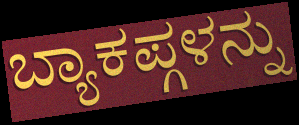
ಬ್ಯಾಕಪ್ಗಳನ್ನು